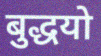
बुद्धयो